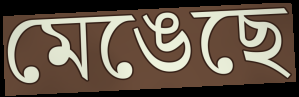
মেঙেছে